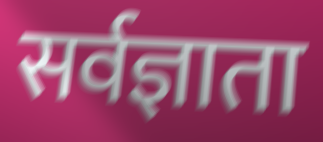
सर्वज्ञाता